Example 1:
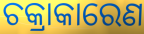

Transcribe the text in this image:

ଚକ୍ରାକାରେଣ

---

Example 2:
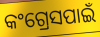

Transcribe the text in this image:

କଂଗ୍ରେସପାଇଁ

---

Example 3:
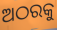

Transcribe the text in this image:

ଅଠରକୁ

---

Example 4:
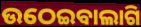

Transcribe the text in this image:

ଉଠେଇବାଲାଗି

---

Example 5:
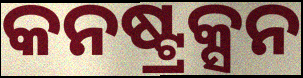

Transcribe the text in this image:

କନଷ୍ଟ୍ରକ୍ସନ